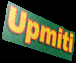
Upmiti